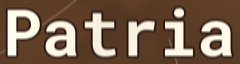
Patria